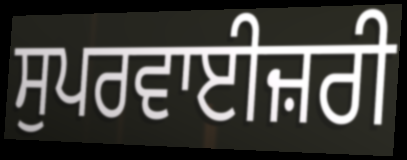
ਸੁਪਰਵਾਈਜ਼ਰੀ